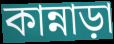
কান্নাড়া